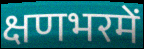
क्षणभरमें